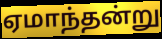
ஏமாந்தன்று